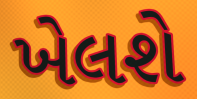
ખેલશે